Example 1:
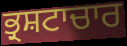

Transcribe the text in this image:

ਭ੍ਰਸ਼ਟਾਚਾਰ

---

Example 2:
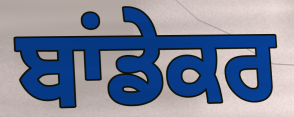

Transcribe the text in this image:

ਬਾਂਡੇਕਰ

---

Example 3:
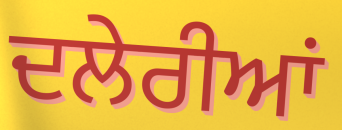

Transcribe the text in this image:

ਦਲੇਰੀਆਂ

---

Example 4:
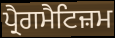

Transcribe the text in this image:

ਪ੍ਰੈਗਮੈਟਿਜ਼ਮ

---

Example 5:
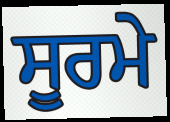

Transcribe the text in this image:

ਸੂਰਮੇ